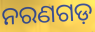
ନରଣଗଡ଼